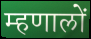
म्हणालों